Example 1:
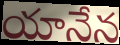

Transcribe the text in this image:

యానేన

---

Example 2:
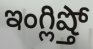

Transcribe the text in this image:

ఇంగ్లిష్తో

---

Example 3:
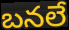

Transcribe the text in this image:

బనలే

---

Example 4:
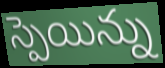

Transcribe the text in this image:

స్పెయిన్ను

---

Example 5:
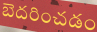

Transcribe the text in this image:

బెదరించడం